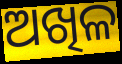
ଅଖିଳ